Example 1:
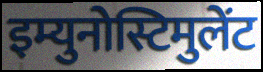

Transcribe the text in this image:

इम्युनोस्टिमुलेंट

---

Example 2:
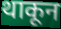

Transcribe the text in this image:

थाकून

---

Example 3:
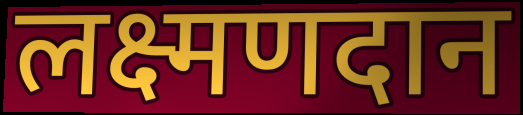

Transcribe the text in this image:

लक्ष्मणदान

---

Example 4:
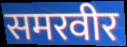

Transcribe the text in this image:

समरवीर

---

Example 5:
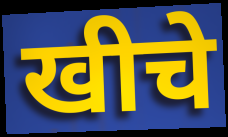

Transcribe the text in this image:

खीचे